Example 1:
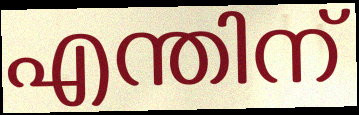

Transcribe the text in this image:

എന്തിന്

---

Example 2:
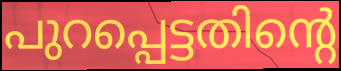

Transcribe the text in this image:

പുറപ്പെട്ടതിന്റെ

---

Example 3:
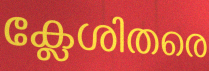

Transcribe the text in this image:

ക്ലേശിതരെ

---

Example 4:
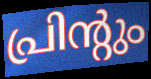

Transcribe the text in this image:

പ്രിന്റും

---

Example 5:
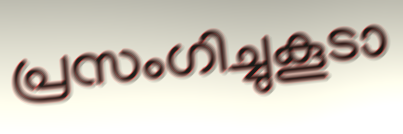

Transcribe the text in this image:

പ്രസംഗിച്ചുകൂടാ